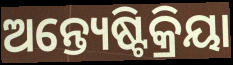
ଅନ୍ତ୍ୟେଷ୍ଟିକ୍ରିୟା